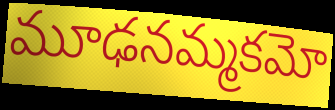
మూఢనమ్మకమో